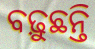
ବଢ଼ୁଛନ୍ତି